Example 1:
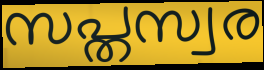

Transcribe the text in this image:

സപ്തസ്വര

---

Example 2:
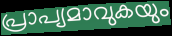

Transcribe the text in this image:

പ്രാപ്യമാവുകയും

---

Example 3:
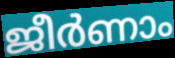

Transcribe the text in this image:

ജീർണാം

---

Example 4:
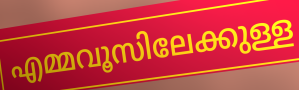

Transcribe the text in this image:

എമ്മവൂസിലേക്കുള്ള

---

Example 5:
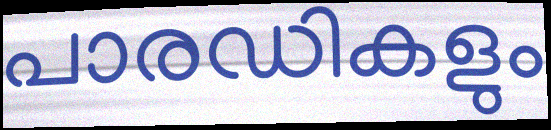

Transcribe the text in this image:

പാരഡികളും